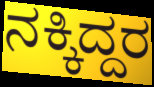
ನಕ್ಕಿದ್ದರ